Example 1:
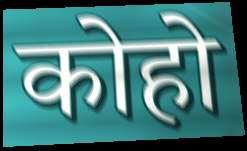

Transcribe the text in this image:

कोहो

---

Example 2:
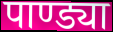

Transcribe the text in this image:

पाण्ड्या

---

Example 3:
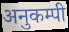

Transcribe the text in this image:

अनुकम्पी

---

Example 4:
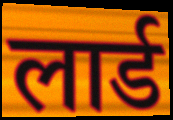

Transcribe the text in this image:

लार्ड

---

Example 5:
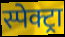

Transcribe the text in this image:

स्पेक्ट्रा